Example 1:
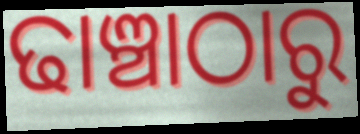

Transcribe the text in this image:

ଢାଞ୍ଚାଠାରୁ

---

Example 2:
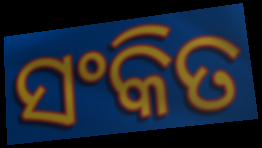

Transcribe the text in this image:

ସଂକିତ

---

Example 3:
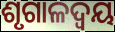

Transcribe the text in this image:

ଶୃଗାଳଦ୍ୱୟ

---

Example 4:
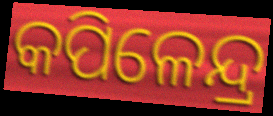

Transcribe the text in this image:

କପିଳେନ୍ଦ୍ର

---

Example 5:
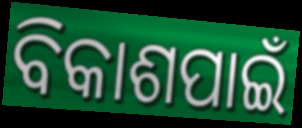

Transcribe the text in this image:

ବିକାଶପାଇଁ